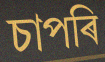
চাপৰি